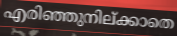
എരിഞ്ഞുനില്ക്കാതെ